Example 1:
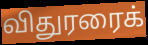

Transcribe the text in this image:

விதுரரைக்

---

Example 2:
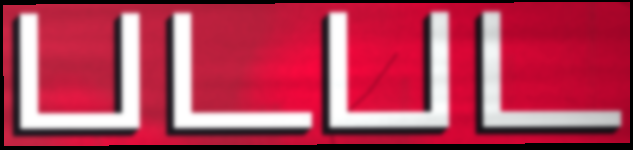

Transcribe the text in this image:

படபட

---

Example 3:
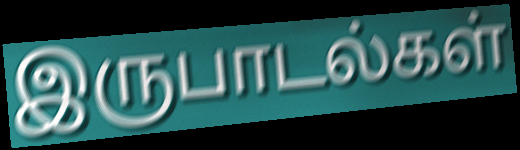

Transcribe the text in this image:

இருபாடல்கள்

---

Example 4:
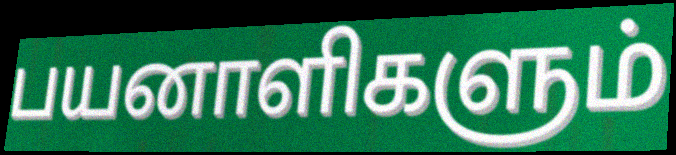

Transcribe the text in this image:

பயனாளிகளும்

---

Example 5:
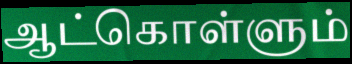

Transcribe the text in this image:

ஆட்கொள்ளும்